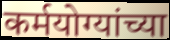
कर्मयोग्यांच्या